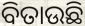
ବିତାଉଛି